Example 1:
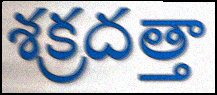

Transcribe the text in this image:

శక్రదత్తా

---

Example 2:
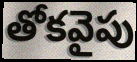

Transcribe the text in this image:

తోకవైపు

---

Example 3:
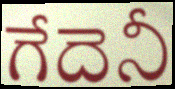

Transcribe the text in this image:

గేదెనీ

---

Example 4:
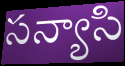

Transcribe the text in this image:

సన్యాసి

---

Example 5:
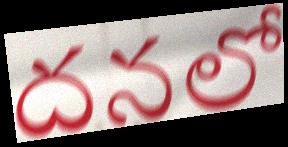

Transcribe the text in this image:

దనలో